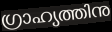
ഗ്രാഹ്യത്തിനു